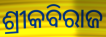
ଶ୍ରୀକବିରାଜ